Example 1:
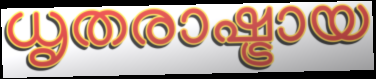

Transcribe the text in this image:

ധൃതരാഷ്ട്രായ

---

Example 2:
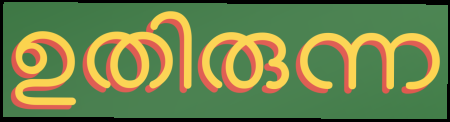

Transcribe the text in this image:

ഉതിരുന്ന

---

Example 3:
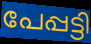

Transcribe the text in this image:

പേപ്പട്ടി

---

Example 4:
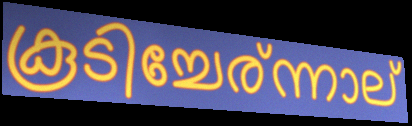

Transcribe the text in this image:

കൂടിച്ചേര്ന്നാല്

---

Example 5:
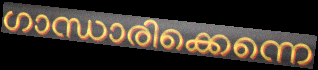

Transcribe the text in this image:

ഗാന്ധാരിക്കെന്നെ